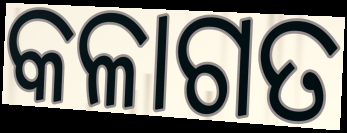
କଳାଗତ